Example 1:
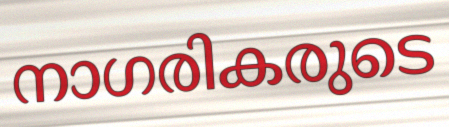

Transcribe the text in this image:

നാഗരികരുടെ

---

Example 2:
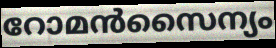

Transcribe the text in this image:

റോമൻസൈന്യം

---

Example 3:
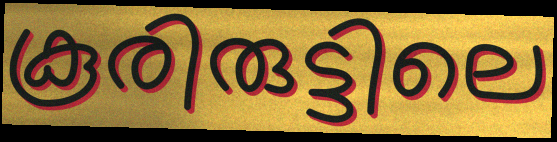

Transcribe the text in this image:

കൂരിരുട്ടിലെ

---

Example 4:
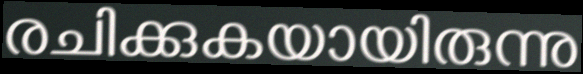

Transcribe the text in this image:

രചിക്കുകയായിരുന്നു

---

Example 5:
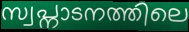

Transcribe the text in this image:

സ്വപ്നാടനത്തിലെ